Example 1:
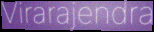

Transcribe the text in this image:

Virarajendra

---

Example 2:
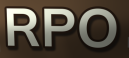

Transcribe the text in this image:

RPO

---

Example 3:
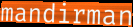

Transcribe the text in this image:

mandirman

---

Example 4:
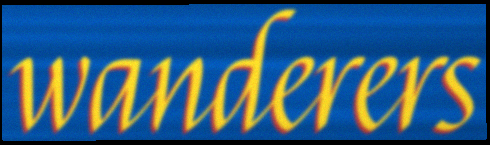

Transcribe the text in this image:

wanderers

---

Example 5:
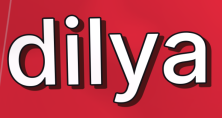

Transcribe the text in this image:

dilya